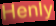
Henly